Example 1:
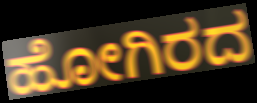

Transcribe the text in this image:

ಹೋಗಿರದ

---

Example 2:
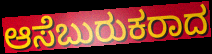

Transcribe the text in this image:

ಆಸೆಬುರುಕರಾದ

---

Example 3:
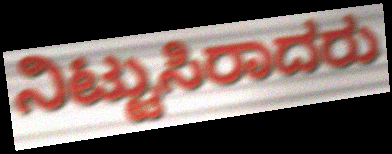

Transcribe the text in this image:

ನಿಟ್ಟುಸಿರಾದರು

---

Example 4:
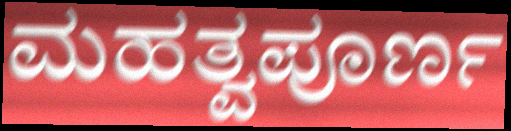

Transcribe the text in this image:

ಮಹತ್ವಪೂರ್ಣ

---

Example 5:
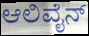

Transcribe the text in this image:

ಆಲಿವೈನ್